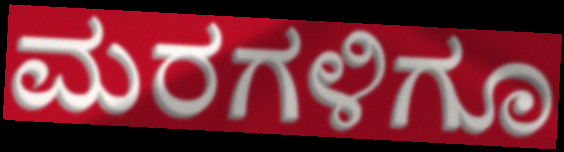
ಮರಗಳಿಗೂ